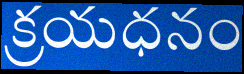
క్రయధనం